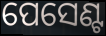
ପେସେଣ୍ଟ